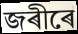
জৰীৰে